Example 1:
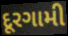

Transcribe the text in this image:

દૂરગામી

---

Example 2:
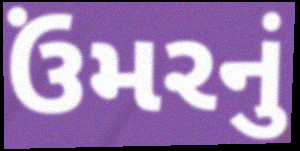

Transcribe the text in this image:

ઉંમરનું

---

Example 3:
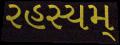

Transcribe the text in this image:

રહસ્યમ્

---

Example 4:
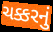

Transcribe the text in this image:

ચક્કરનું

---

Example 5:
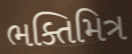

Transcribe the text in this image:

ભક્તિમિત્ર